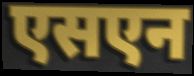
एसएन